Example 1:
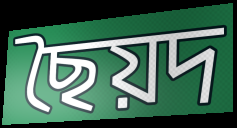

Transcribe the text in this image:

ছৈয়দ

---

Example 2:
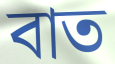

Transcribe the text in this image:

বাত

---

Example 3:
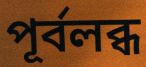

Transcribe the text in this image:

পূৰ্বলব্ধ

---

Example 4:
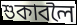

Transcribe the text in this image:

শুকাবলৈ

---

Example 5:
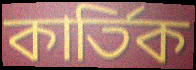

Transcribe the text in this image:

কাৰ্তিক